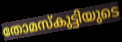
തോമസ്കുട്ടിയുടെ